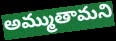
అమ్ముతామని